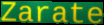
Zarate